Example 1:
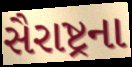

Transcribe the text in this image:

સૈરાષ્ટ્રના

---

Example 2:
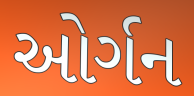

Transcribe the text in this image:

ઓર્ગન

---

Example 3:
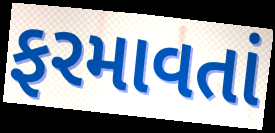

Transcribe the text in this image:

ફરમાવતાં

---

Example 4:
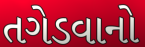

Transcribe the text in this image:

તગેડવાનો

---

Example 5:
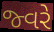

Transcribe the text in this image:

જ્વરે